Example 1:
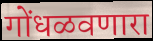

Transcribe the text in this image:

गोंधळवणारा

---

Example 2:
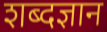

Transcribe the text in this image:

शब्दज्ञान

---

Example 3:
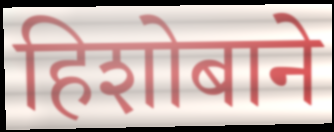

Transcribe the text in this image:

हिशोबाने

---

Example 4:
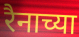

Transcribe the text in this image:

रैनाच्या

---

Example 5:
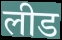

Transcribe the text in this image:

लीड